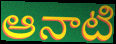
ఆనాటి